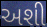
અશી